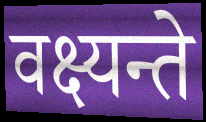
वक्ष्यन्ते